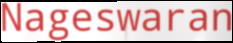
Nageswaran